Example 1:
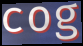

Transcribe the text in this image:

cog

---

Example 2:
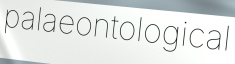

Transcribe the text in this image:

palaeontological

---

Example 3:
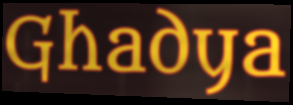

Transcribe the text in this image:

Ghadya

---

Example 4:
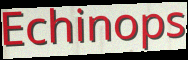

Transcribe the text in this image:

Echinops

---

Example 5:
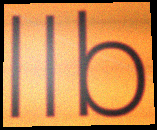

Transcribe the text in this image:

IIb